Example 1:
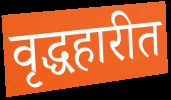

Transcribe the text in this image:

वृद्धहारीत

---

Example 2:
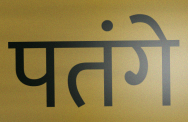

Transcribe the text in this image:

पतंगे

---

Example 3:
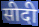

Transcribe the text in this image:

सीदी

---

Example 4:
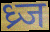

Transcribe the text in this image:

ध्र्ज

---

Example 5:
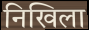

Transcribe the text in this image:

निखिला